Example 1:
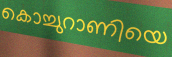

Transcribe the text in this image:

കൊച്ചുറാണിയെ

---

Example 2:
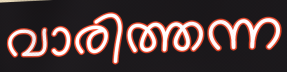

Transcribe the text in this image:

വാരിത്തന്ന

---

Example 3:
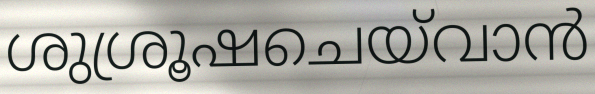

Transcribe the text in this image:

ശുശ്രൂഷചെയ്‌വാൻ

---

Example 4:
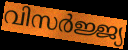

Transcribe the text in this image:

വിസർജ്ജ്യ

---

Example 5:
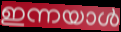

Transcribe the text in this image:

ഇന്നയാൾ